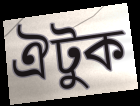
ঐটুক